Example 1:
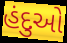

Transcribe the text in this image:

હંદુઓ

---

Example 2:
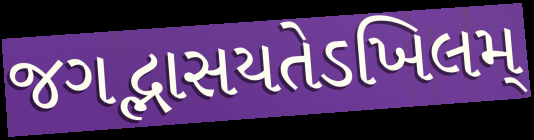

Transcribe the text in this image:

જગદ્ભાસયતેઽખિલમ્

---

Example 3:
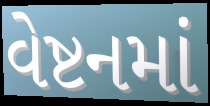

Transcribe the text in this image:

વેષ્ટનમાં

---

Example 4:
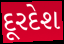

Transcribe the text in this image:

દૂરદેશ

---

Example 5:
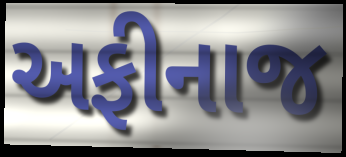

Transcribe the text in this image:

અફીનાજ